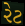
રેટ